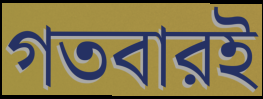
গতবারই